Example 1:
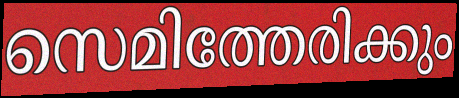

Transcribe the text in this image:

സെമിത്തേരിക്കും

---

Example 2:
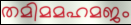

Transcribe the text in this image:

തമിമമഹമജം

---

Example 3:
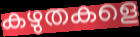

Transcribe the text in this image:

കഴുതകളെ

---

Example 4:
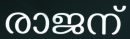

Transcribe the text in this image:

രാജന്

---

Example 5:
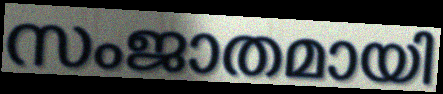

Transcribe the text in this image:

സംജാതമായി